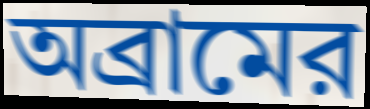
অব্রামের